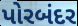
પોરબંદર